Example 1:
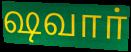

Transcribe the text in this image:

ஷவார்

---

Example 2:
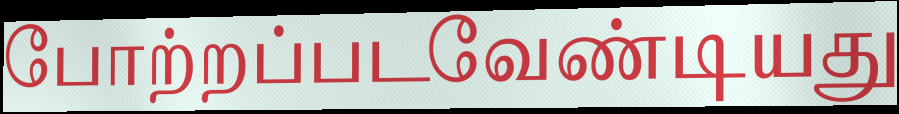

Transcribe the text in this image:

போற்றப்படவேண்டியது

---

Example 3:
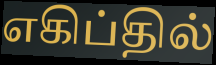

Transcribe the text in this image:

எகிப்தில்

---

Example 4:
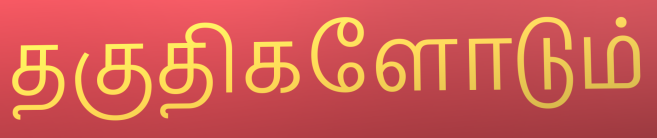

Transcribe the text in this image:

தகுதிகளோடும்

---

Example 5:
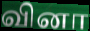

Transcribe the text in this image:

வினா